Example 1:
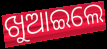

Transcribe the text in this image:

ଖୁଆଇଲେ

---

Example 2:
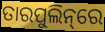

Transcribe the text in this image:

ତାରପୁଲିନ୍‌ରେ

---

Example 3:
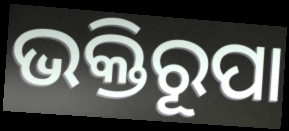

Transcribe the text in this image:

ଭକ୍ତିରୂପା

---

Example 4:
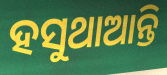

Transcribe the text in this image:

ହସୁଥାଆନ୍ତି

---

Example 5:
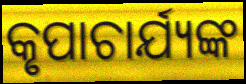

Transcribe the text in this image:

କୃପାଚାର୍ଯ୍ୟଙ୍କ